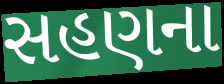
સહણના